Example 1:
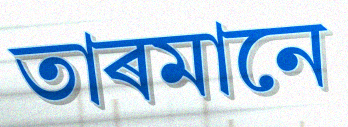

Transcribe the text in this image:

তাৰমানে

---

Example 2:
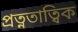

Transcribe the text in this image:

প্ৰত্নতাত্বিক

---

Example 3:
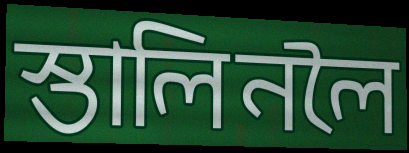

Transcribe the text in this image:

স্তালিনলৈ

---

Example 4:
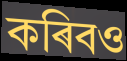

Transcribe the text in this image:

কৰিবও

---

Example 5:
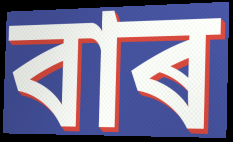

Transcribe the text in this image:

বাৰ